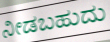
ನೀಡಬಹುದು